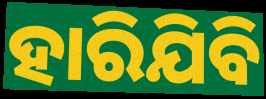
ହାରିଯିବି